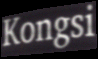
Kongsi